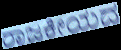
ರಾಜಕೀಯದ